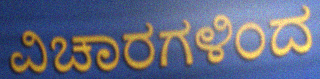
ವಿಚಾರಗಳಿಂದ